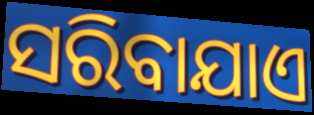
ସରିବାଯାଏ